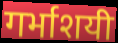
गर्भाशयी